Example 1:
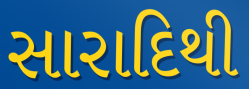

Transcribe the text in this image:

સારાદિથી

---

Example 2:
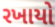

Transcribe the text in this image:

રખાયો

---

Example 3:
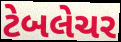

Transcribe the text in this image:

ટેબલેચર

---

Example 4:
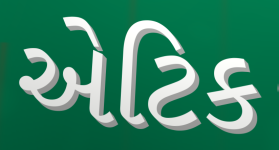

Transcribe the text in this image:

એટિક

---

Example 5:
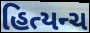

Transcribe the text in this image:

હિત્યન્ચ